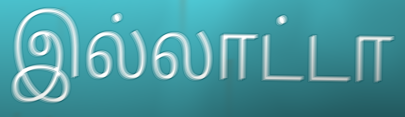
இல்லாட்டா